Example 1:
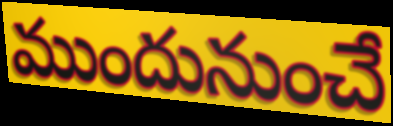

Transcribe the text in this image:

ముందునుంచే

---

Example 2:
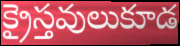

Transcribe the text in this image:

క్రైస్తవులుకూడ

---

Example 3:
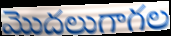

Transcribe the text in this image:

మొదలుగాగల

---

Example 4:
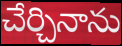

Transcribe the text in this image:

చేర్చినాను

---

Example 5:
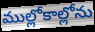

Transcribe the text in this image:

ముల్లోకాల్లోను